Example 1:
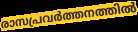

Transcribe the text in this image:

രാസപ്രവർത്തനത്തിൽ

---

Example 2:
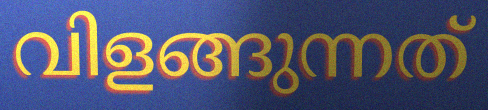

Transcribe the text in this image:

വിളങ്ങുന്നത്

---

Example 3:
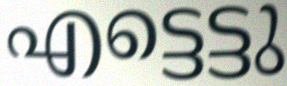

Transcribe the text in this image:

എട്ടെട്ടു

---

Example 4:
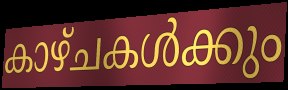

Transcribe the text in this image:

കാഴ്ചകൾക്കും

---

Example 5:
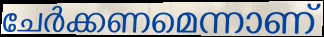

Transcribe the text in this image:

ചേർക്കണമെന്നാണ്